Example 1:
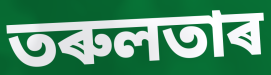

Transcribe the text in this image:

তৰুলতাৰ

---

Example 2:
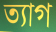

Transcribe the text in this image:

ত্যাগ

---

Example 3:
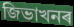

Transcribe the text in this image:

জিভাখনৰ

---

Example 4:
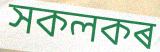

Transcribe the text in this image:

সকলকৰ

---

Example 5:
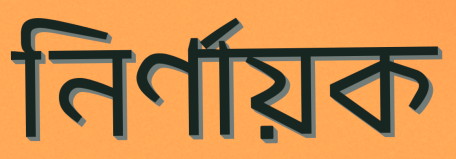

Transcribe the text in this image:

নিৰ্ণায়ক